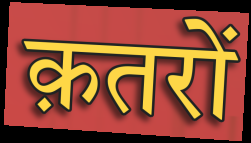
क़तरों